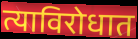
त्याविरोधात